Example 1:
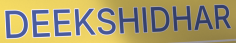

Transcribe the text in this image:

DEEKSHIDHAR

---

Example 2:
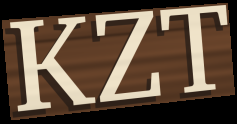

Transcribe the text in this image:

KZT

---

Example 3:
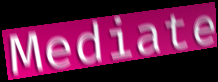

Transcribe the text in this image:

Mediate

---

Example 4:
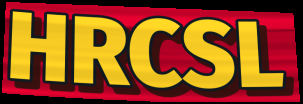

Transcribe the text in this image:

HRCSL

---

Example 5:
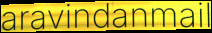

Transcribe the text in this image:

aravindanmail